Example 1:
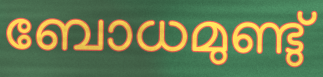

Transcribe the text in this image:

ബോധമുണ്ടു്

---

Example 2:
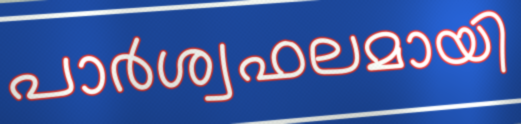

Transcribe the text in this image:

പാർശ്വഫലമായി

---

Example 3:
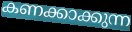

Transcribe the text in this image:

കണക്കാക്കുന്ന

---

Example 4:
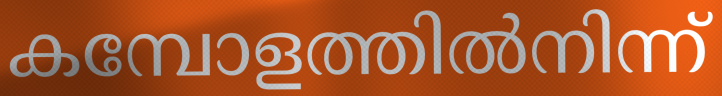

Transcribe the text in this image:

കമ്പോളത്തിൽനിന്ന്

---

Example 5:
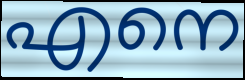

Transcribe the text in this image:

എനെ